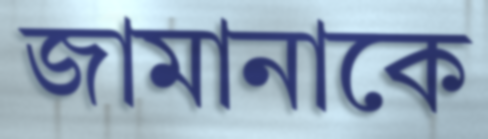
জামানাকে